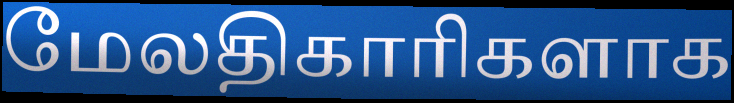
மேலதிகாரிகளாக